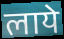
लाये